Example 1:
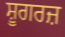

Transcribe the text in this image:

ਸ਼ੂਗਰਜ਼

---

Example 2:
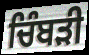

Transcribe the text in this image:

ਚਿੰਬੜੀ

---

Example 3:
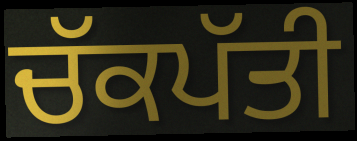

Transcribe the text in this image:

ਚੱਕਪੱਤੀ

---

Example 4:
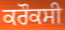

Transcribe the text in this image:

ਕਰੌਕਸੀ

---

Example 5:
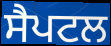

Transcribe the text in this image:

ਸੈਪਟਲ